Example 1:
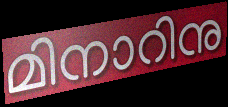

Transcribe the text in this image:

മിനാറിനു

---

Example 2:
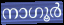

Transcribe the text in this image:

നാഗൂർ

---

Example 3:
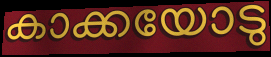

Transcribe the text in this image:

കാക്കയോടു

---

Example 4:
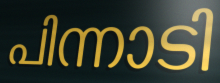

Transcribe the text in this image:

പിന്നാടി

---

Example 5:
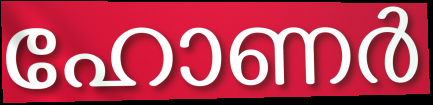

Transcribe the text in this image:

ഹോണർ